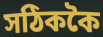
সঠিককৈ